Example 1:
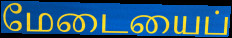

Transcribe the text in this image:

மேடையைப்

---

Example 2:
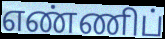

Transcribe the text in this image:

எண்ணிப்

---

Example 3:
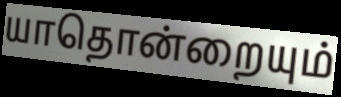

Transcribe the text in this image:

யாதொன்றையும்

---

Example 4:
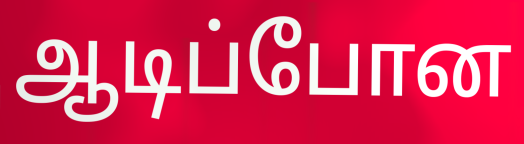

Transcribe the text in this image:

ஆடிப்போன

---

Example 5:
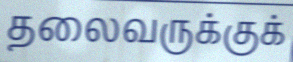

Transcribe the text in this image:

தலைவருக்குக்